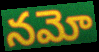
నమో